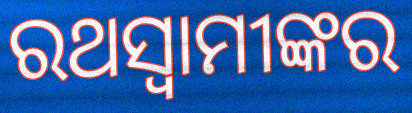
ରଥସ୍ୱାମୀଙ୍କର